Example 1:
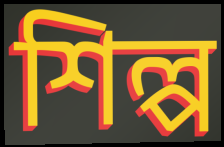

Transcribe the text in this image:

শিল্প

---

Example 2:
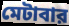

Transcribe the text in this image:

মেটাবার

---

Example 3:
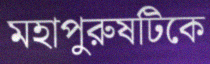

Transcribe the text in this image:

মহাপুরুষটিকে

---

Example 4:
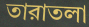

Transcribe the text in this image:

তারাতলা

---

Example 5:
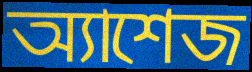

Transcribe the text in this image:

অ্যাশেজ